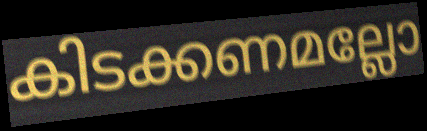
കിടക്കണമല്ലോ